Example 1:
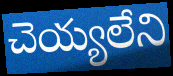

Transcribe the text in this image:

చెయ్యలేని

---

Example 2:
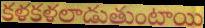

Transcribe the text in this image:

కళకళలాడుతుంటాయి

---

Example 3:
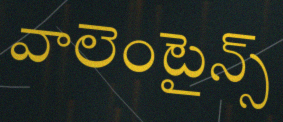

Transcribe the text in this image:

వాలెంటైన్స్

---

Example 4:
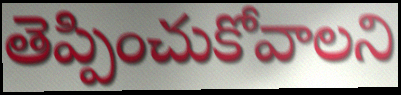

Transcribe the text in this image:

తెప్పించుకోవాలని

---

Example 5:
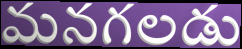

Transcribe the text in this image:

మనగలడు